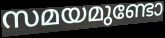
സമയമുണ്ടോ